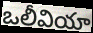
ఒలీవియా